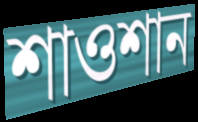
শাওশান